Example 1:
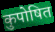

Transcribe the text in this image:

कुपोषित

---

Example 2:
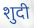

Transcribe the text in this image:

शुदी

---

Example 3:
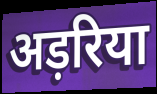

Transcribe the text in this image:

अड़रिया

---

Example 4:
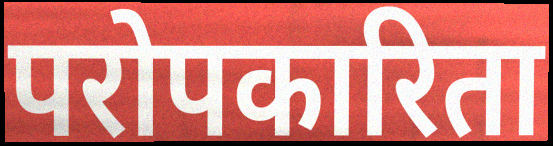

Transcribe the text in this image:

परोपकारिता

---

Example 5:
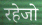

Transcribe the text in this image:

रहेजो